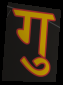
गु